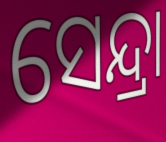
ସେନ୍ଦ୍ରା